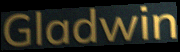
Gladwin